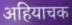
अहियाचक